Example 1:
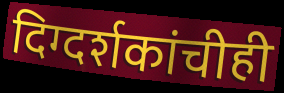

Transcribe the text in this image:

दिग्दर्शकांचीही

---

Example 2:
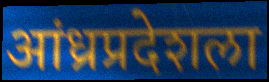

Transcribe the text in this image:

आंध्रप्रदेशला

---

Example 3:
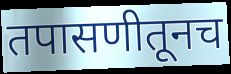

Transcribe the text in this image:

तपासणीतूनच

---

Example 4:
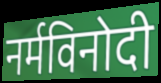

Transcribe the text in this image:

नर्मविनोदी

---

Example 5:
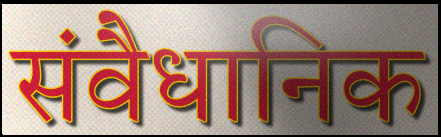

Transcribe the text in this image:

संवैधानिक